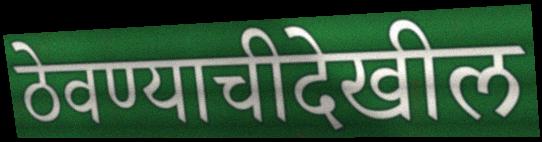
ठेवण्याचीदेखील